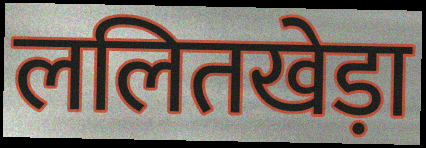
ललितखेड़ा